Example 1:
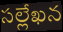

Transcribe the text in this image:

సల్లేఖన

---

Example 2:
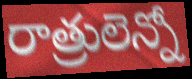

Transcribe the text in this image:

రాత్రులెన్నో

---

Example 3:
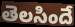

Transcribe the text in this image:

తెలసిందే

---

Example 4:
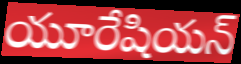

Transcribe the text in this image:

యూరేషియన్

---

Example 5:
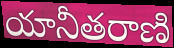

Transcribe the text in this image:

యానీతరాణి